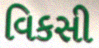
વિકસી